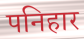
पनिहार